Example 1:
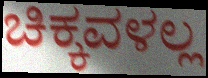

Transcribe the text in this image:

ಚಿಕ್ಕವಳಲ್ಲ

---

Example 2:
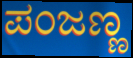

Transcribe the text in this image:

ಪಂಜಣ್ಣ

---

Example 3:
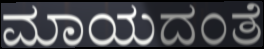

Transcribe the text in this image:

ಮಾಯದಂತೆ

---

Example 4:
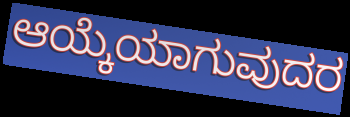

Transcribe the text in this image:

ಆಯ್ಕೆಯಾಗುವುದರ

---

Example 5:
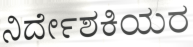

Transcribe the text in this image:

ನಿರ್ದೇಶಕಿಯರ